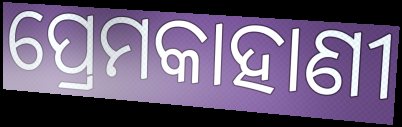
ପ୍ରେମକାହାଣୀ